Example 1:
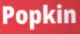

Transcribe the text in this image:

Popkin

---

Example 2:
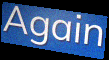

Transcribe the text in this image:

Again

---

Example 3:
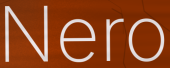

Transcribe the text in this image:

Nero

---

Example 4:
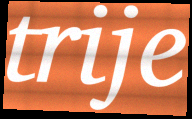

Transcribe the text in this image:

trije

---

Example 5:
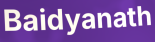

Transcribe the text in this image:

Baidyanath